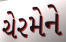
ચેરમેને